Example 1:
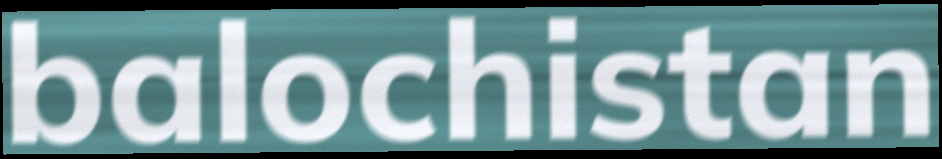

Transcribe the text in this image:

balochistan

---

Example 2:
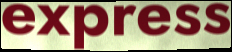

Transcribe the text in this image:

express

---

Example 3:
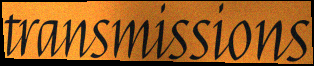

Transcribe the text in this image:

transmissions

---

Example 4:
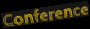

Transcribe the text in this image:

Conference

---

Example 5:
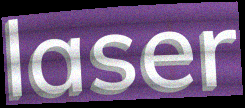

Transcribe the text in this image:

laser